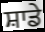
ਸ਼ਾਡੇ